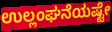
ಉಲ್ಲಂಘನೆಯಷ್ಟೇ